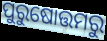
ପୁରୁଷୋତ୍ତମରୁ